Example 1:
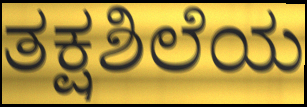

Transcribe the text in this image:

ತಕ್ಷಶಿಲೆಯ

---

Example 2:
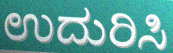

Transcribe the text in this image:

ಉದುರಿಸಿ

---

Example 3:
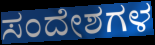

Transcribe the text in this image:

ಸಂದೇಶಗಳ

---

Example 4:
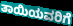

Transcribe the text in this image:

ತಾಯಿಯವರಿಗೆ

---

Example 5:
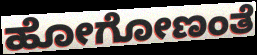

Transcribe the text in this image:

ಹೋಗೋಣಂತೆ